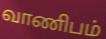
வாணிபம்